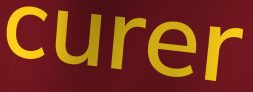
curer